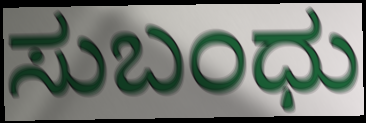
ಸುಬಂಧು